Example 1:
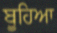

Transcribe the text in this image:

ਬੂਹਿਆ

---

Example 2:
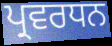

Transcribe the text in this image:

ਪ੍ਰਵਰਧਨ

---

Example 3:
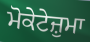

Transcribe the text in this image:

ਮੋਕੇਟੇਜ਼ੁਮਾ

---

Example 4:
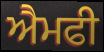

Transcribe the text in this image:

ਐਮਫੀ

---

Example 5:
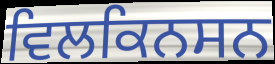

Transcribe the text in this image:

ਵਿਲਕਿਨਸਨ